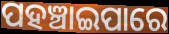
ପହଞ୍ଚାଇପାରେ